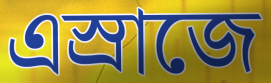
এস্রাজে